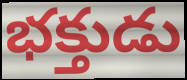
భక్తుడు